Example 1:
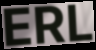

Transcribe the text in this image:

ERL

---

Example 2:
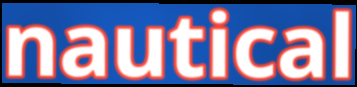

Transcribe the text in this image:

nautical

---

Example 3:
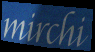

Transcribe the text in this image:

mirchi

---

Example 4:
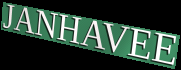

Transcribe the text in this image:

JANHAVEE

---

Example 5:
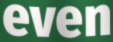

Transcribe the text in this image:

even